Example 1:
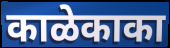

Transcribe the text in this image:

काळेकाका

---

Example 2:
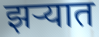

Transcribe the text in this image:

झर्‍यात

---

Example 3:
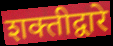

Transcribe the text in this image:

शक्तीद्वारे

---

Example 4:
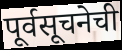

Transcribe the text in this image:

पूर्वसूचनेची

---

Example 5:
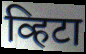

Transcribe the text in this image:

व्हिटा